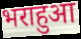
भराहुआ